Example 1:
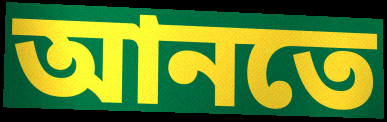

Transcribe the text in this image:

আনতে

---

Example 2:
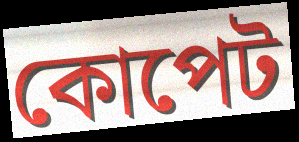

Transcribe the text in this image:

কোপেট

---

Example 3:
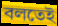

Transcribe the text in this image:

বলতেই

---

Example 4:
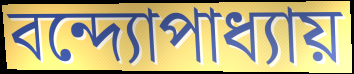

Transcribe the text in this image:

বন্দ্যোপাধ্যায়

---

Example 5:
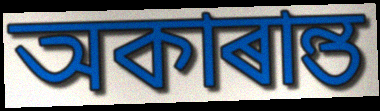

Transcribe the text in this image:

অকাৰান্ত